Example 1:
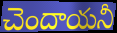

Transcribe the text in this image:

చెందాయనీ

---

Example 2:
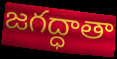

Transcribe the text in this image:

జగద్ధాతా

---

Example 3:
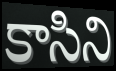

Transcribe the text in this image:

కాసిని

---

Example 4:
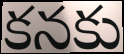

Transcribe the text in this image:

కనకు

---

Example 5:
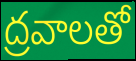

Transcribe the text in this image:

ద్రవాలతో